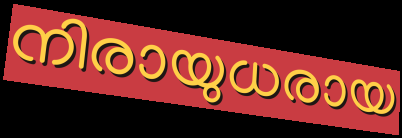
നിരായുധരായ